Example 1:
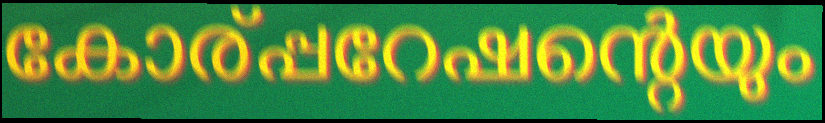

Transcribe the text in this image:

കോര്പ്പറേഷന്റെയും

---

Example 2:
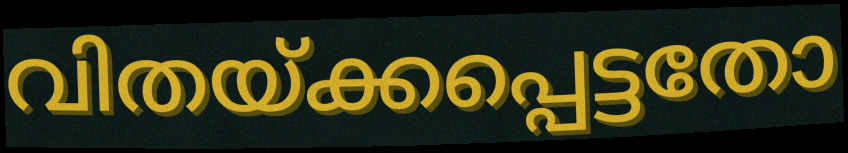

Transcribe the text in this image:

വിതയ്ക്കപ്പെട്ടതോ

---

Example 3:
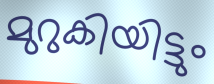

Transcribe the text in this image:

മുറുകിയിട്ടും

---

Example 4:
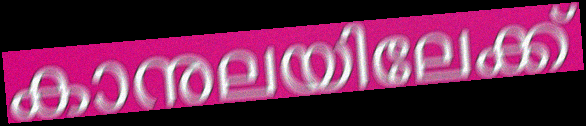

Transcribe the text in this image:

കാനുലയിലേക്ക്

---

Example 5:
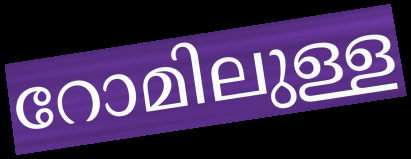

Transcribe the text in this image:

റോമിലുള്ള